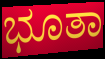
ಭೂತಾ